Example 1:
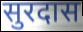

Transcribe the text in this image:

सुरदास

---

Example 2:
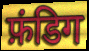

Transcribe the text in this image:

फ़ंडिग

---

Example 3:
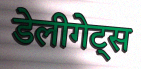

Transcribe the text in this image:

डेलीगेट्स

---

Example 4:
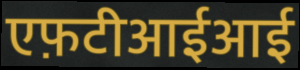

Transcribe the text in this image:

एफ़टीआईआई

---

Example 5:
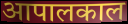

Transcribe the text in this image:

आपालकाल